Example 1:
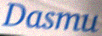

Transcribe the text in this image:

Dasmu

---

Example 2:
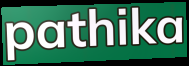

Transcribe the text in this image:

pathika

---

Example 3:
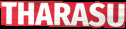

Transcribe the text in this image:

THARASU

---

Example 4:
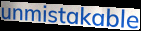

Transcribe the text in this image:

unmistakable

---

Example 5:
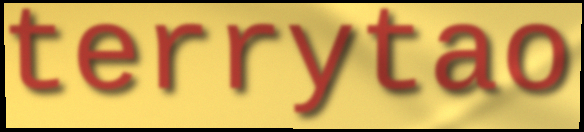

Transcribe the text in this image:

terrytao